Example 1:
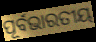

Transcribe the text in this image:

ପୂର୍ବଭାରତୀୟ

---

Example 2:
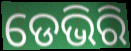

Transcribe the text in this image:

ଡେଭିରି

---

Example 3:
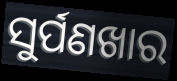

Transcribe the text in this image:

ସୁର୍ପଣଖାର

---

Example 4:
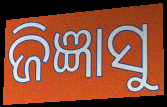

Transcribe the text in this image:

ଜିଜ୍ଞାସୁ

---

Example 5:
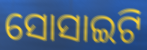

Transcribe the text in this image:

ସୋସାଇଟି